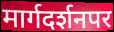
मार्गदर्शनपर